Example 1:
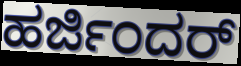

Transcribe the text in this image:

ಹರ್ಜಿಂದರ್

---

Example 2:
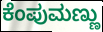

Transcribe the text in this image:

ಕೆಂಪುಮಣ್ಣು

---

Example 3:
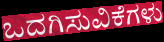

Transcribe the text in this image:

ಒದಗಿಸುವಿಕೆಗಳು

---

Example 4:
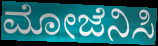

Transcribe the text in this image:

ಮೋಜೆನಿಸಿ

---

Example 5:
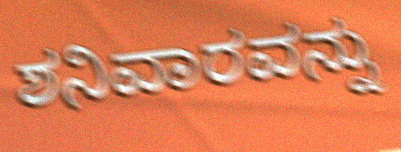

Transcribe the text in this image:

ಶನಿವಾರವನ್ನು